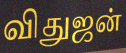
விதுஜன்